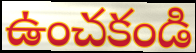
ఉంచకండి